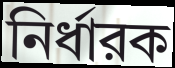
নির্ধারক